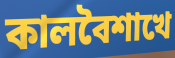
কালবৈশাখে